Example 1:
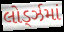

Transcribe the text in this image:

લોર્ડ્ઝમાં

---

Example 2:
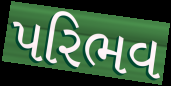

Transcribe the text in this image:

પરિભવ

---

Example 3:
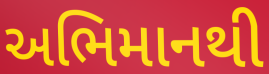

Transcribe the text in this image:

અભિમાનથી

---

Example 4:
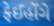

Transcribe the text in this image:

ફેઈહોંગે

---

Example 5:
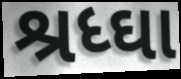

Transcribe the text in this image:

શ્રધ્ઘા